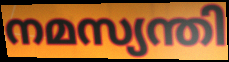
നമസ്യന്തി